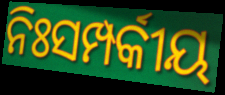
ନିଃସମ୍ପର୍କୀୟ